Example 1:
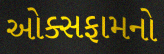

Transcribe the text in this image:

ઓક્સફામનો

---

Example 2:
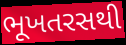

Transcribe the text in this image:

ભૂખતરસથી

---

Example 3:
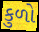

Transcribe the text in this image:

કુળો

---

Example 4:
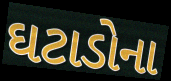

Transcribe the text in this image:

ઘટાડોના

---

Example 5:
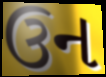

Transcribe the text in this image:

ઉન